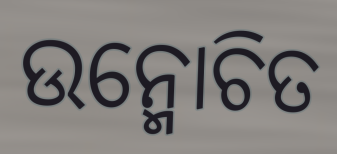
ଉନ୍ମୋଚିତ